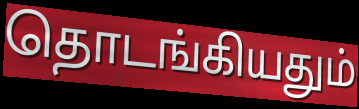
தொடங்கியதும்